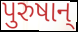
પુરુષાન્